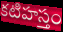
కటిహస్తం